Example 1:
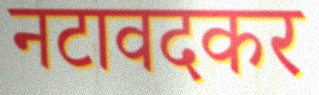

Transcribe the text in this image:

नटावदकर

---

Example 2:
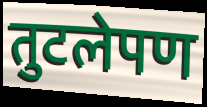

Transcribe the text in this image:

तुटलेपण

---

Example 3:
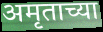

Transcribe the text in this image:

अमृताच्या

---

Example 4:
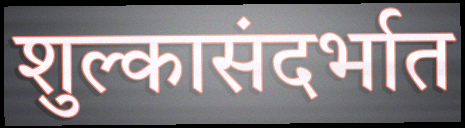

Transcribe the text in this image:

शुल्कासंदर्भात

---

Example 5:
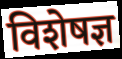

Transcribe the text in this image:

विशेषज्ञ